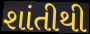
શાંતીથી